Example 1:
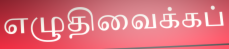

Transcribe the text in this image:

எழுதிவைக்கப்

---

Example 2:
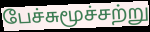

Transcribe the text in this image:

பேச்சுமூச்சற்று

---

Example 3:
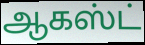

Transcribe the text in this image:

ஆகஸ்ட்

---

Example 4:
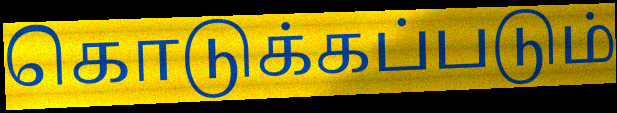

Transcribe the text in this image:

கொடுக்கப்படும்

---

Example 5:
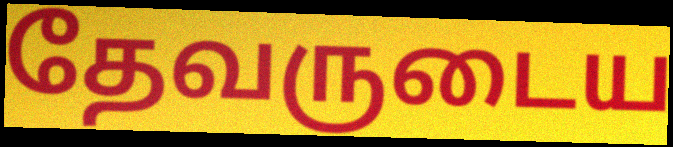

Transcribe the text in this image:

தேவருடைய